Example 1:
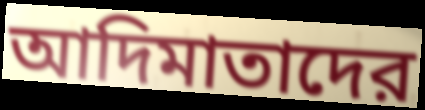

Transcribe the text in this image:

আদিমাতাদের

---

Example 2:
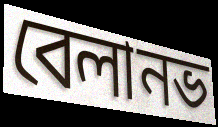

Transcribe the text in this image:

বেলানভ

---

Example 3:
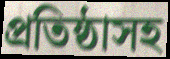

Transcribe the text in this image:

প্রতিষ্ঠাসহ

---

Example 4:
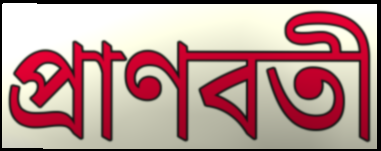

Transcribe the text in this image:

প্রাণবতী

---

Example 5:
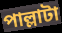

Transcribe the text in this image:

পাল্লাটা